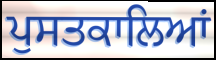
ਪੁਸਤਕਾਲਿਆਂ